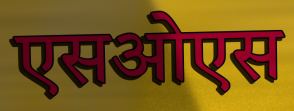
एसओएस